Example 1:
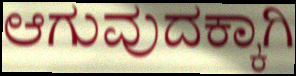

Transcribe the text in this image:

ಆಗುವುದಕ್ಕಾಗಿ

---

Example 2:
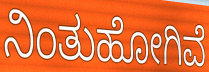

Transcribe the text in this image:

ನಿಂತುಹೋಗಿವೆ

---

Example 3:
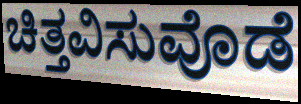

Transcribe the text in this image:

ಚಿತ್ತವಿಸುವೊಡೆ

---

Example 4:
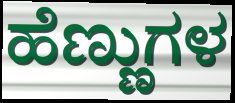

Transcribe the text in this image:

ಹೆಣ್ಣುಗಳ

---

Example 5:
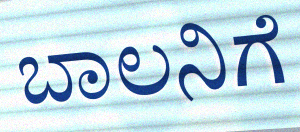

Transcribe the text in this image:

ಬಾಲನಿಗೆ